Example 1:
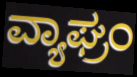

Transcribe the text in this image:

ವ್ಯಾಘ್ರಂ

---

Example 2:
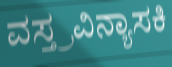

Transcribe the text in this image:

ವಸ್ತ್ರವಿನ್ಯಾಸಕಿ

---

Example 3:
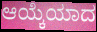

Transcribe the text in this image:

ಆಯ್ಕೆಯಾದ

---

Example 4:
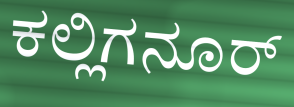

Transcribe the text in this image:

ಕಲ್ಲಿಗನೂರ್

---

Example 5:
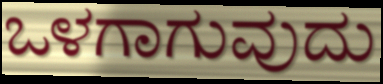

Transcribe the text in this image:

ಒಳಗಾಗುವುದು